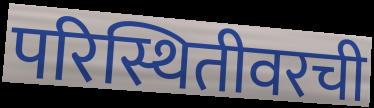
परिस्थितीवरची